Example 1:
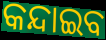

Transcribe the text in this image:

କନ୍ଦାଇବ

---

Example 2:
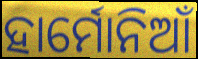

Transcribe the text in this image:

ହାର୍ମୋନିଆଁ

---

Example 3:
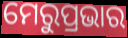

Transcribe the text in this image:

ମେରୁପ୍ରଭାର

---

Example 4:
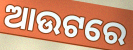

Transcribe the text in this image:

ଆଉଟରେ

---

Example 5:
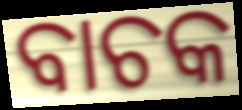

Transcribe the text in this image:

ବାଚକ